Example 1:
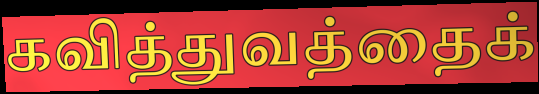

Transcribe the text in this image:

கவித்துவத்தைக்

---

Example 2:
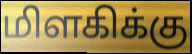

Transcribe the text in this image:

மிளகிக்கு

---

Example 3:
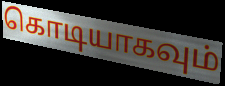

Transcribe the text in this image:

கொடியாகவும்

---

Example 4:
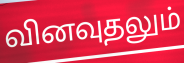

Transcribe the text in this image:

வினவுதலும்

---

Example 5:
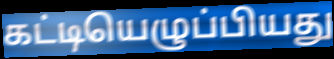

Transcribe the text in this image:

கட்டியெழுப்பியது